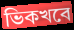
ভিকখবে